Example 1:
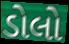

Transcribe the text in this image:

ડોલો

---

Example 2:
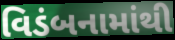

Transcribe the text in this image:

વિડંબનામાંથી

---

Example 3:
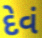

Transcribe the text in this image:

દેવં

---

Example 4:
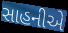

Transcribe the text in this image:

સાહનીએ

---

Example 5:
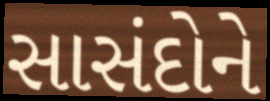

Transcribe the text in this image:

સાસંદોને